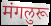
मंगलुरू